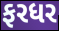
ફરધર